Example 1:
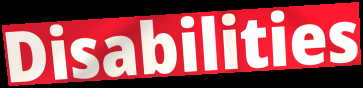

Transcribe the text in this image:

Disabilities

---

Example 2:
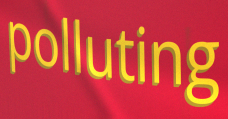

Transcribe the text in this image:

polluting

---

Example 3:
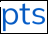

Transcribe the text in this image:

pts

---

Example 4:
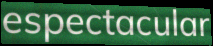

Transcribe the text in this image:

espectacular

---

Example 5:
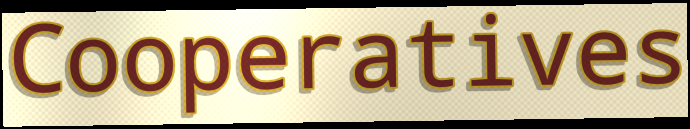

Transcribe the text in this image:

Cooperatives